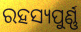
ରହସ୍ୟପୁର୍ଣ୍ଣ